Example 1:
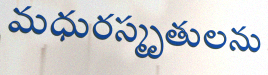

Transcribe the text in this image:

మధురస్మృతులను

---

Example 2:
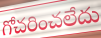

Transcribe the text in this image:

గోచరించలేదు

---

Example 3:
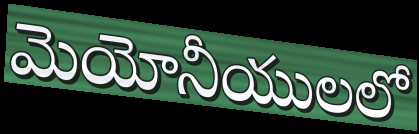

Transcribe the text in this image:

మెయోనీయులలో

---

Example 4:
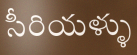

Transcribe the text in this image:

సీరియళ్ళు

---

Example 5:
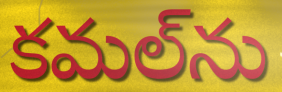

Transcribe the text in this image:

కమల్‌ను